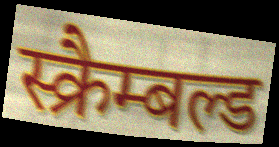
स्क्रैम्बल्ड